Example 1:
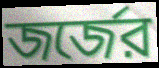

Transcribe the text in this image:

জর্জের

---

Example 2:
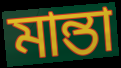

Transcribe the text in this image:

মান্তা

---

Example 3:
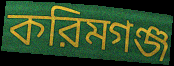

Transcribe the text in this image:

করিমগঞ্জ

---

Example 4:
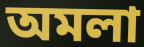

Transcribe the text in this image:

অমলা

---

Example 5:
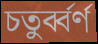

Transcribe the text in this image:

চতুর্ব্বর্ণ